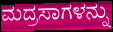
ಮದ್ರಸಾಗಳನ್ನು